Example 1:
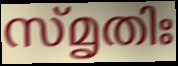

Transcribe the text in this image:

സ്മൃതിഃ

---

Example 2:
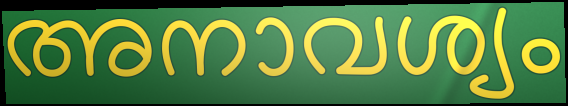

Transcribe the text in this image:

അനാവശ്യം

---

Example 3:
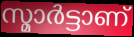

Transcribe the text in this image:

സ്മാർട്ടാണ്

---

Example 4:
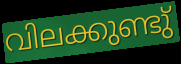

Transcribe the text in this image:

വിലക്കുണ്ടു്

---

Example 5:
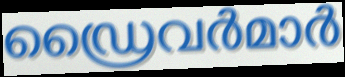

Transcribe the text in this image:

ഡ്രൈവർമാർ